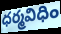
ధర్మవిధిం